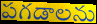
పగడాలను